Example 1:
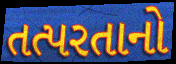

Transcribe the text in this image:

તત્પરતાનો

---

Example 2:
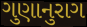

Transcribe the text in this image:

ગુણાનુરાગ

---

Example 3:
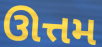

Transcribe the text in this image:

ઊત્તમ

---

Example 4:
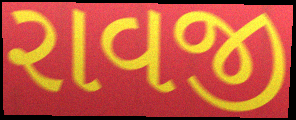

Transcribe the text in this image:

રાવજી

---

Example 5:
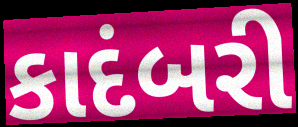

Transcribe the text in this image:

કાદંબરી